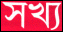
সখ্য